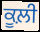
ਕੂਲ਼ੀ